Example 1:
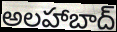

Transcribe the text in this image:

అలహాబాద్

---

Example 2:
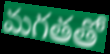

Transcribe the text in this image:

మగతతో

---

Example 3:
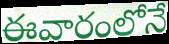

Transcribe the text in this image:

ఈవారంలోనే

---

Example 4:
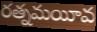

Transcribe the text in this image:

రత్నమయీవ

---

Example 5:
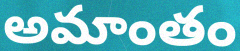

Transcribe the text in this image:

అమాంతం